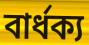
বার্ধক্য